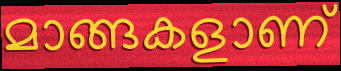
മാങ്ങകളാണ്